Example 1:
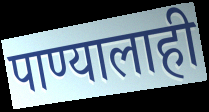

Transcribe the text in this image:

पाण्यालाही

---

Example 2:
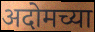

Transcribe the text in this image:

अदोमच्या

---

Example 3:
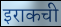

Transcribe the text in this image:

इराकची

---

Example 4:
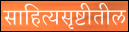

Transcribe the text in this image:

साहित्यसृष्टीतील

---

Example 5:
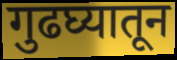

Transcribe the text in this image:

गुढघ्यातून